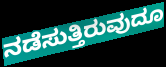
ನಡೆಸುತ್ತಿರುವುದೂ